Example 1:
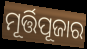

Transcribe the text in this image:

ମୂର୍ତ୍ତିପୂଜାର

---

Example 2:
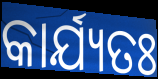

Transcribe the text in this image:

କାର୍ଯ୍ୟତଃ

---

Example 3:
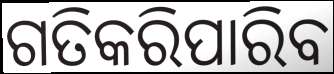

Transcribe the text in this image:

ଗତିକରିପାରିବ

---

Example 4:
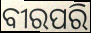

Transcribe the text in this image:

ବୀରପରି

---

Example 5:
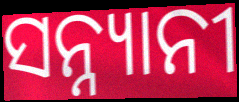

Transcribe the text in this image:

ସନ୍ନ୍ୟାନୀ